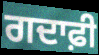
ਗਦਾਫ਼ੀ